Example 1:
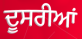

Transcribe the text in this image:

ਦੂਸਰੀਆਂ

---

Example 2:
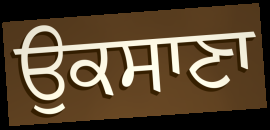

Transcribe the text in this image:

ਉਕਸਾਣਾ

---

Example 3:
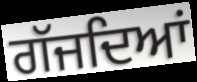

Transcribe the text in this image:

ਗੱਜਦਿਆਂ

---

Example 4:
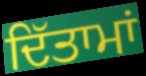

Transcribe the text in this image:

ਦਿੱਤਾਮਾਂ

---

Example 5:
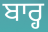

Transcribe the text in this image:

ਬਾਰ੍ਹ